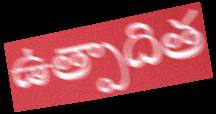
ఉత్పాదిత